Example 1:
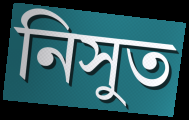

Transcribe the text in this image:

নিসুত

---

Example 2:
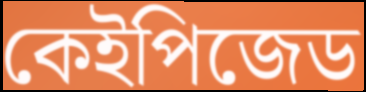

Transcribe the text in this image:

কেইপিজেড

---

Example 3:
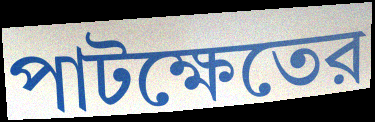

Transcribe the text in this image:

পাটক্ষেতের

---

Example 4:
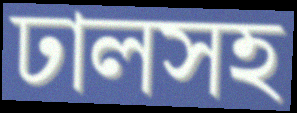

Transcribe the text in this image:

ঢালসহ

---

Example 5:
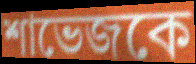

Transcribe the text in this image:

শাভেজকে